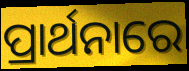
ପ୍ରାର୍ଥନାରେ